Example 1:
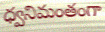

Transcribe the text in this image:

ధ్వనిమంతంగా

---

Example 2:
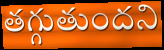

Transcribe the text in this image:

తగ్గుతుందని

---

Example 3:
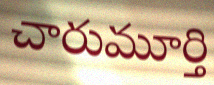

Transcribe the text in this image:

చారుమూర్తి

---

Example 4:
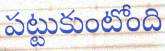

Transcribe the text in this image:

పట్టుకుంటోంది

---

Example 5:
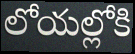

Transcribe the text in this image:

లోయల్లోకి